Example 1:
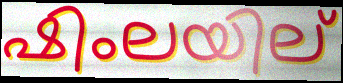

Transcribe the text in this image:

ഷിംലയില്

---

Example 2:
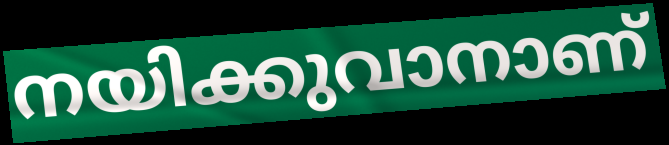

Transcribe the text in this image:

നയിക്കുവാനാണ്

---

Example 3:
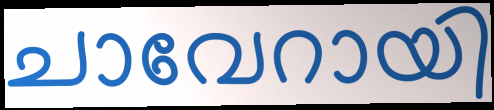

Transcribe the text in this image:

ചാവേറായി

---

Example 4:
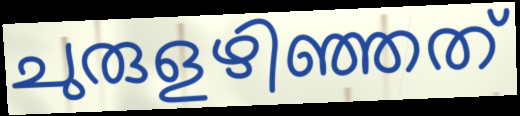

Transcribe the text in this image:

ചുരുളഴിഞ്ഞത്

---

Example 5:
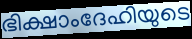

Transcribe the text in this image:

ഭിക്ഷാംദേഹിയുടെ